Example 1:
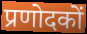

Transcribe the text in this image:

प्रणोदकों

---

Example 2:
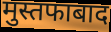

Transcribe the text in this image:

मुस्तफाबाद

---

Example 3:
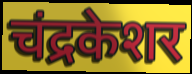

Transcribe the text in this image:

चंद्रकेशर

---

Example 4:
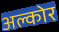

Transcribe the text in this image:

अल्कोर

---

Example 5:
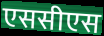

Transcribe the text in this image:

एससीएस